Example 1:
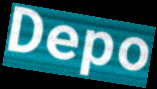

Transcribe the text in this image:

Depo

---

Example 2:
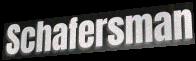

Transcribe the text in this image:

Schafersman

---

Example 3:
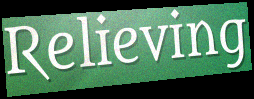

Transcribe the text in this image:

Relieving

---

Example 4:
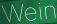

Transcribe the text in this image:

Wein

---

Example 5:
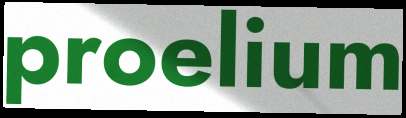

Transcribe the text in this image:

proelium